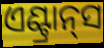
ଏଣ୍ଟ୍ରାନ୍‍ସ